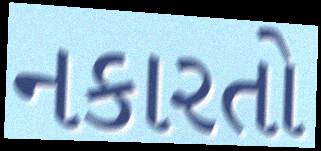
નકારતો